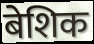
बेशिक